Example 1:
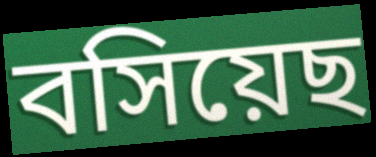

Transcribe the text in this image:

বসিয়েছ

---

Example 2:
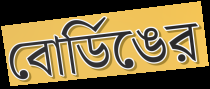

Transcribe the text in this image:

বোর্ডিঙের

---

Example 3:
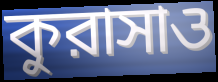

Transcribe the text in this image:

কুরাসাও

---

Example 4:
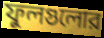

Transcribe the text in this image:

ফুলগুলোর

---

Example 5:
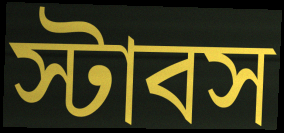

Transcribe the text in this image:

স্টাবস